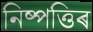
নিষ্পত্তিৰ